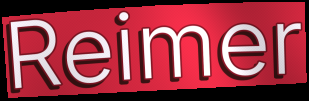
Reimer